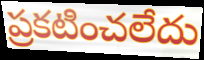
ప్రకటించలేదు